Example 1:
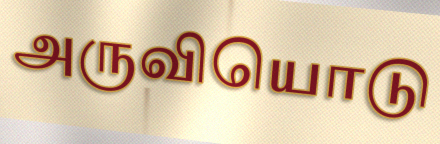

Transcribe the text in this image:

அருவியொடு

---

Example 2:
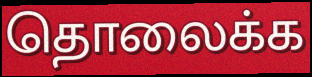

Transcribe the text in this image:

தொலைக்க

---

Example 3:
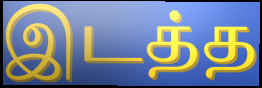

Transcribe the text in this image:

இடத்த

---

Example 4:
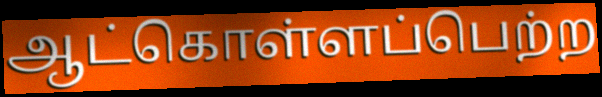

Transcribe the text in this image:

ஆட்கொள்ளப்பெற்ற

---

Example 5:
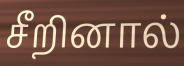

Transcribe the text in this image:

சீறினால்